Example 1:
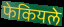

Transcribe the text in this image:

फेकियले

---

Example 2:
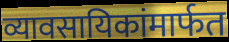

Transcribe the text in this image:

व्यावसायिकांमार्फत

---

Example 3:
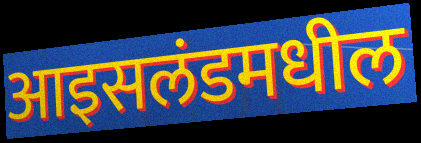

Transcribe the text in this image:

आइसलंडमधील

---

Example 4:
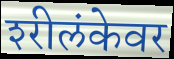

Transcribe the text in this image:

श्रीलंकेवर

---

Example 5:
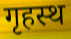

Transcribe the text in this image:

गृहस्थ